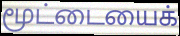
மூட்டையைக்